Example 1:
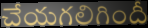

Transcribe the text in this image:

చేయగలిగిందీ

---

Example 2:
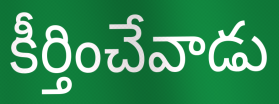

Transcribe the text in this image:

కీర్తించేవాడు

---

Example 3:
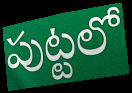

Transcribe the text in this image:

పుట్టలో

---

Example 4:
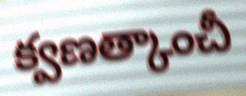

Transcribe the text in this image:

క్వణత్కాంచీ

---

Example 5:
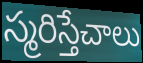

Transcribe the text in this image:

స్మరిస్తేచాలు